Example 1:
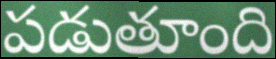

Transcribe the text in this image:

పడుతూంది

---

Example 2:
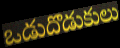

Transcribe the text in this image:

ఒడుదొడుకులు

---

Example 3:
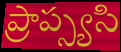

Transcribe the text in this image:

ప్రాప్స్యసి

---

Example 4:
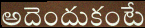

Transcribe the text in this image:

అదెందుకంటే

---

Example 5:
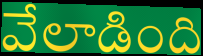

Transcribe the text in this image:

వేలాడింది